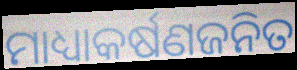
ମାଧ୍ୟାକର୍ଷଣଜନିତ